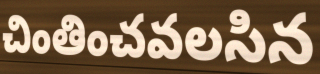
చింతించవలసిన